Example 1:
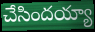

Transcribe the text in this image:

చేసిందయ్యా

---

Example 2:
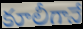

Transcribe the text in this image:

కూలీగానే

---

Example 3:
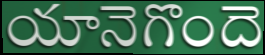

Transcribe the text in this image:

యానెగొందె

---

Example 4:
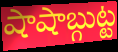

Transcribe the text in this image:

షాషాబ్గుట్ట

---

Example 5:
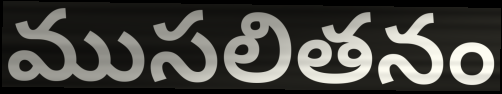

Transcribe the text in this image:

ముసలితనం